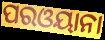
ପରଓୟାନା